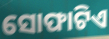
ସୋଫାଟିଏ